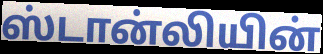
ஸ்டான்லியின்